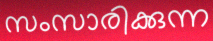
സംസാരിക്കുന്ന